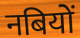
नबियों